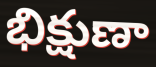
భిక్షుణా